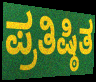
ಪ್ರತಿಷ್ಠಿತ